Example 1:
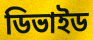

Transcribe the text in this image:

ডিভাইড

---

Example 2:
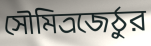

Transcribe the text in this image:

সৌমিত্রজেঠুর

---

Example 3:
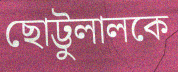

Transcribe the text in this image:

ছোট্টুলালকে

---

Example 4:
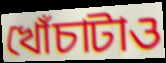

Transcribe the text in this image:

খোঁচাটাও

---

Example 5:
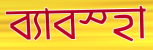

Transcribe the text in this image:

ব্যাবস্হা